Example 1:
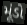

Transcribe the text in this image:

મૂંડો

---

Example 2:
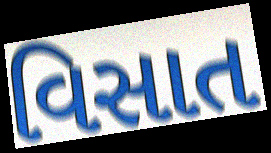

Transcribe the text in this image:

વિસાત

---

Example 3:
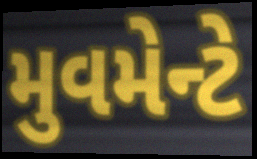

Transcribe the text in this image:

મુવમેન્ટે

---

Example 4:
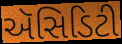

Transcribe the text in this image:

ઍસિડિટી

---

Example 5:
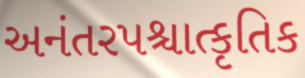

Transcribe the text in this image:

અનંતરપશ્ચાત્કૃતિક